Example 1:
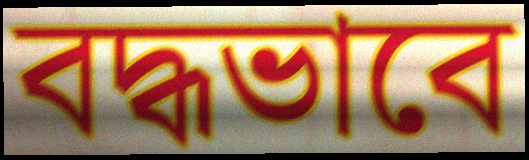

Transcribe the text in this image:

বদ্ধভাবে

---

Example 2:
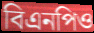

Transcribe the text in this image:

বিএনপিও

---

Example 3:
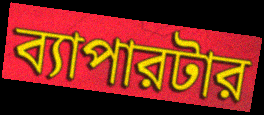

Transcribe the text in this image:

ব্যাপারটার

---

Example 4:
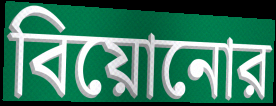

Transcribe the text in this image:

বিয়োনোর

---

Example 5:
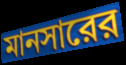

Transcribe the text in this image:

মানসারের